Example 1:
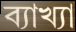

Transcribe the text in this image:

ব্য়াখ্যা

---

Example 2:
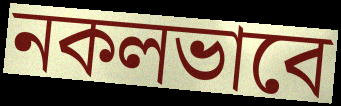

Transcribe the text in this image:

নকলভাবে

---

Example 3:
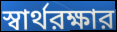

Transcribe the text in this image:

স্বার্থরক্ষার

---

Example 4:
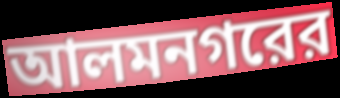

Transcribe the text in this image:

আলমনগরের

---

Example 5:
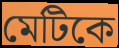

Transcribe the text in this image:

মেটিকে